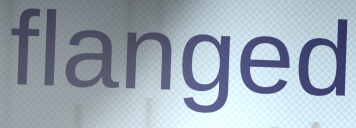
flanged